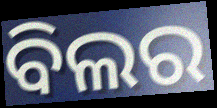
ବିଲର